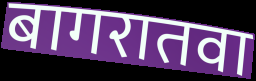
बागरातवा